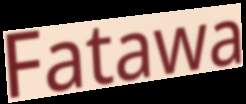
Fatawa